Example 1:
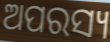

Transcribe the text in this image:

ଅପରସ୍ୟ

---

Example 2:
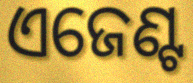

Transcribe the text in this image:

ଏଜେଣ୍ଟ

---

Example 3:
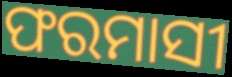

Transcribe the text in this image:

ଫରମାସୀ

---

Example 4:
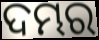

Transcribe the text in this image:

ଦମ୍ଭର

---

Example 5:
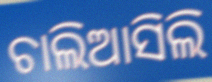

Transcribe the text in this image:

ଚାଲିଆସିଲି